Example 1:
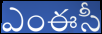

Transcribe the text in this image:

ఎంఈసీ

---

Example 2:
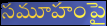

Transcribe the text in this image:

సమూహంపై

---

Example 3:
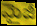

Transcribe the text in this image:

మైజీ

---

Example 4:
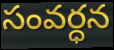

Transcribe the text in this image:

సంవర్ధన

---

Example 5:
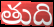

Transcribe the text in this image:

తుది